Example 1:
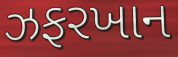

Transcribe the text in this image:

ઝફરખાન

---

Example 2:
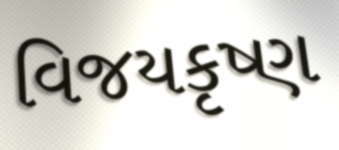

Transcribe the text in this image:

વિજયકૃષ્ણ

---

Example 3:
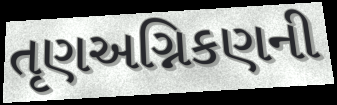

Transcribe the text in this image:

તૃણઅગ્નિકણની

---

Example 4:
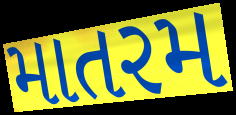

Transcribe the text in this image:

માતરમ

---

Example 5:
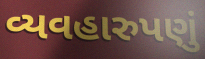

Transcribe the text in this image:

વ્યવહારુપણું